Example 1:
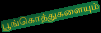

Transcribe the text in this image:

பூங்கொத்துகளையும்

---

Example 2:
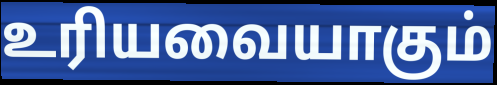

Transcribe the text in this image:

உரியவையாகும்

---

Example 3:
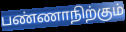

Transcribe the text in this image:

பண்ணாநிற்கும்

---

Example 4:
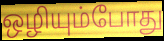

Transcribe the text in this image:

ஒழியும்போது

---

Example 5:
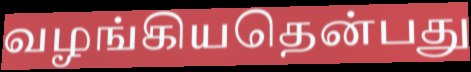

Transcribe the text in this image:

வழங்கியதென்பது